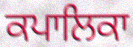
ਕਪਾਲਿਕਾ